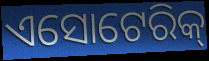
ଏସୋଟେରିକ୍